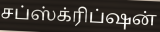
சப்ஸ்க்ரிப்ஷன்